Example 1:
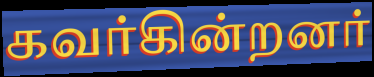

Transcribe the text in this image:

கவர்கின்றனர்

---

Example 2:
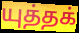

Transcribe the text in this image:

யுத்தக்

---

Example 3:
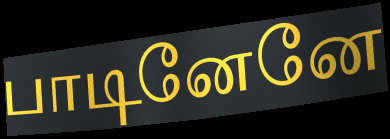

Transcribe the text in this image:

பாடினேனே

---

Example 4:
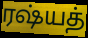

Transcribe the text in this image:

ரஷ்யத்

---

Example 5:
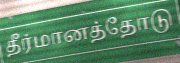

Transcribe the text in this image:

தீர்மானத்தோடு